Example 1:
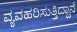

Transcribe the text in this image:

ವ್ಯವಹರಿಸುತ್ತಿದ್ದಾನೆ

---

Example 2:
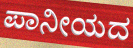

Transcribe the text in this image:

ಪಾನೀಯದ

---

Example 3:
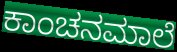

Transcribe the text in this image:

ಕಾಂಚನಮಾಲೆ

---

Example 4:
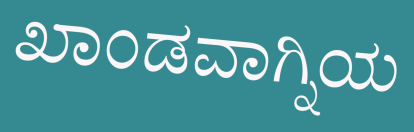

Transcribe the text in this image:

ಖಾಂಡವಾಗ್ನಿಯ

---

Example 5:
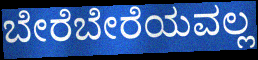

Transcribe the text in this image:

ಬೇರೆಬೇರೆಯವಲ್ಲ